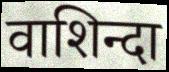
वाशिन्दा